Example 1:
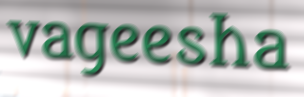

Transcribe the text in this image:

vageesha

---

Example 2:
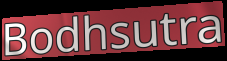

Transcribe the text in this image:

Bodhsutra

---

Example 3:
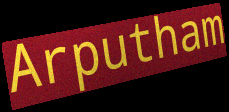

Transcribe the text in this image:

Arputham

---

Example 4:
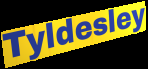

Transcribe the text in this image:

Tyldesley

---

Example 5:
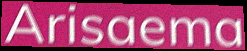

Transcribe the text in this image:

Arisaema